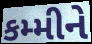
કમ્મીને